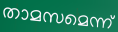
താമസമെന്ന്